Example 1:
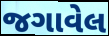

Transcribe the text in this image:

જગાવેલ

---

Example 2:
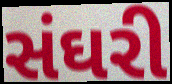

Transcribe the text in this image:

સંઘરી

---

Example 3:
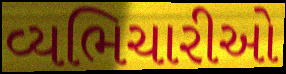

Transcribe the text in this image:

વ્યભિચારીઓ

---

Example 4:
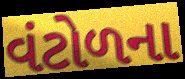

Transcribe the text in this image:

વંટોળના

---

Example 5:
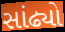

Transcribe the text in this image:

સાંઢ્યો